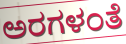
ಅರಗಳಂತೆ